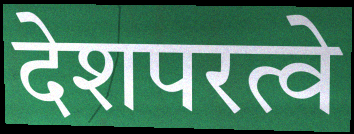
देशपरत्वे